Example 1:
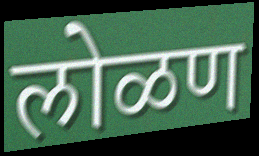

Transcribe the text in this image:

लोळण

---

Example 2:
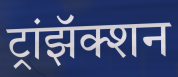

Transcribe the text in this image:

ट्रांझॅक्शन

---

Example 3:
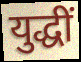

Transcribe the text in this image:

युद्धीं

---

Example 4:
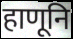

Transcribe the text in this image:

हाणूनि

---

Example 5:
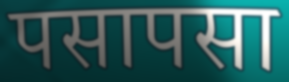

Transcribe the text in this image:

पसापसा